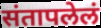
संतापलेलं